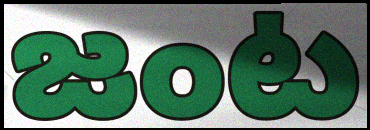
జంట